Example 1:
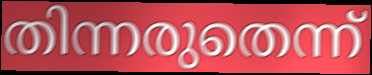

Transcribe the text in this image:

തിന്നരുതെന്ന്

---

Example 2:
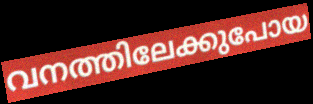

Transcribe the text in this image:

വനത്തിലേക്കുപോയ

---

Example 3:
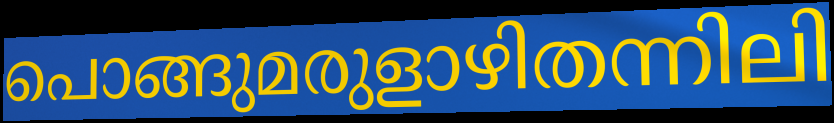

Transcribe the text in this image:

പൊങ്ങുമരുളാഴിതന്നിലി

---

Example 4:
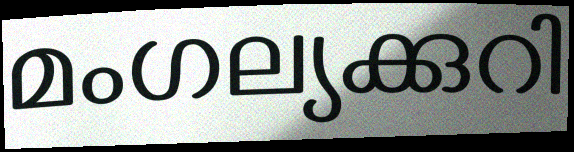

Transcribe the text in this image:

മംഗല്യക്കുറി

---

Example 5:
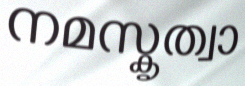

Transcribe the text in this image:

നമസ്കൃത്വാ